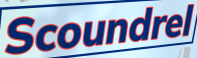
Scoundrel